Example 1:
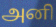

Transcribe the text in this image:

அனி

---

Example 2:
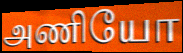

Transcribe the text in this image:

அணியோ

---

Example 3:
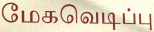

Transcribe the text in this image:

மேகவெடிப்பு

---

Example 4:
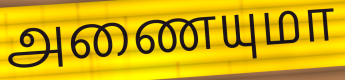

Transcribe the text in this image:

அணையுமா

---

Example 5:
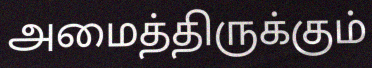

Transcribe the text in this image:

அமைத்திருக்கும்